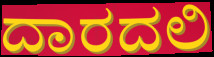
ದಾರದಲಿ